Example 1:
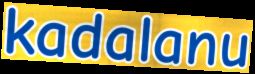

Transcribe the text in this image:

kadalanu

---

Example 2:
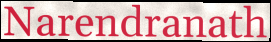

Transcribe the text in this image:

Narendranath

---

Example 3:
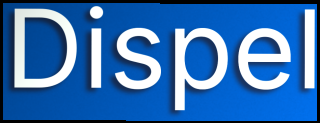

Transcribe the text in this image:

Dispel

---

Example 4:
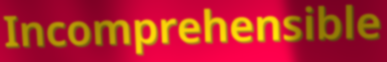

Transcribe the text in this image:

Incomprehensible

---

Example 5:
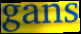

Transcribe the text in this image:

gans